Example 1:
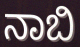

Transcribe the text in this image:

ನಾಬಿ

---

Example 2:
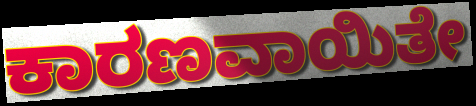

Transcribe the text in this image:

ಕಾರಣವಾಯಿತೇ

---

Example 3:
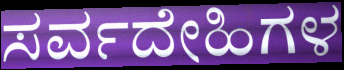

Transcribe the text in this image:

ಸರ್ವದೇಹಿಗಳ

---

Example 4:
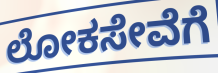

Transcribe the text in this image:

ಲೋಕಸೇವೆಗೆ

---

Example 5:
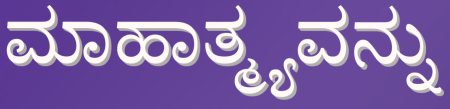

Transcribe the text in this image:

ಮಾಹಾತ್ಮ್ಯವನ್ನು